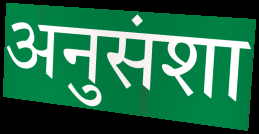
अनुसंशा